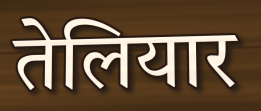
तेलियार